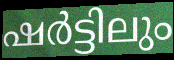
ഷർട്ടിലും